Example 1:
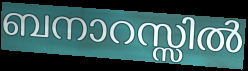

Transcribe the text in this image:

ബനാറസ്സിൽ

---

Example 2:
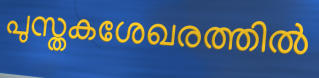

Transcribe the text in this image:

പുസ്തകശേഖരത്തിൽ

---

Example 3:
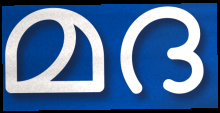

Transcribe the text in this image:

മദ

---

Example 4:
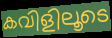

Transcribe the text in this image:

കവിളിലൂടെ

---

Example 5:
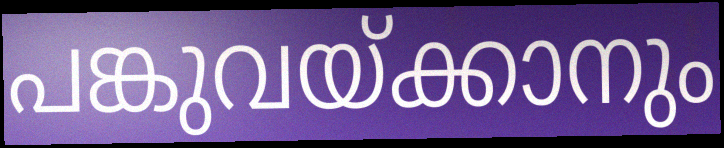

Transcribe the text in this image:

പങ്കുവയ്ക്കാനും